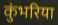
कुंभरिया